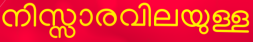
നിസ്സാരവിലയുള്ള